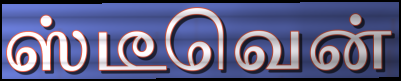
ஸ்டீவென்